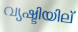
വ്യഷ്ടിയില്